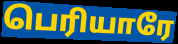
பெரியாரே